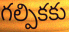
గల్పికకు